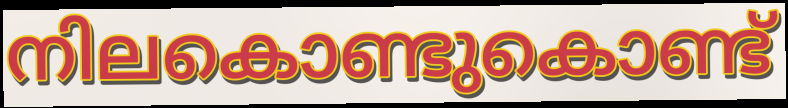
നിലകൊണ്ടുകൊണ്ട്